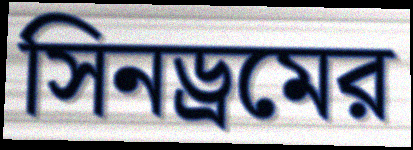
সিনড্রমের